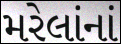
મરેલાંનાં